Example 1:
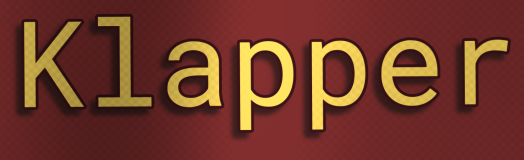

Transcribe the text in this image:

Klapper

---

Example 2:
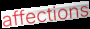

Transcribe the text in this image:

affections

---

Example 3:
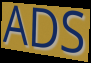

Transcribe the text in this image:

ADS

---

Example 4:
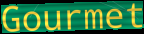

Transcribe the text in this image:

Gourmet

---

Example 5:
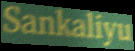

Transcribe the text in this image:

Sankaliyu